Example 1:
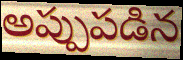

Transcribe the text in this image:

అప్పుపడిన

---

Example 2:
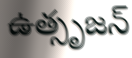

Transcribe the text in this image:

ఉత్సృజన్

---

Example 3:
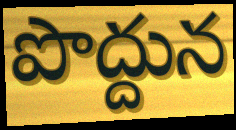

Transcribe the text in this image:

పొద్దున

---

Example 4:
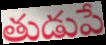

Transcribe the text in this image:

తుడుపే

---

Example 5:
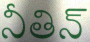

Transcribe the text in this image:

నీతిన్